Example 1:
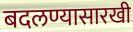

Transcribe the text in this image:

बदलण्यासारखी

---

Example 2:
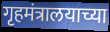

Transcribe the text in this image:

गृहमंत्रालयाच्या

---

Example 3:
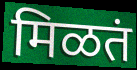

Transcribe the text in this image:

मिळतं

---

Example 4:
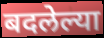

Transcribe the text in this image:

बदलेल्या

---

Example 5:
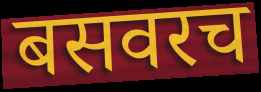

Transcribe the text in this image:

बसवरच